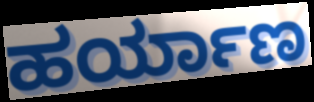
ಹರ್ಯಾಣ